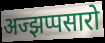
अज्झप्पसारो